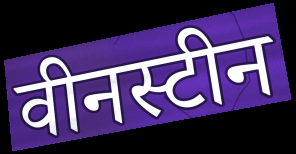
वीनस्टीन